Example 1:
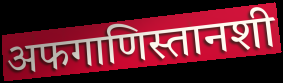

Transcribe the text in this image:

अफगाणिस्तानशी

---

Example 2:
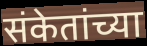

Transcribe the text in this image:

संकेतांच्या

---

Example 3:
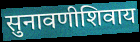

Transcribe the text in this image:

सुनावणीशिवाय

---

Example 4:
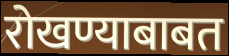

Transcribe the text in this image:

रोखण्याबाबत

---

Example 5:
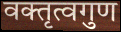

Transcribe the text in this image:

वक्तृत्वगुण